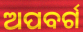
ଅପବର୍ଗ